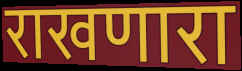
राखणारा